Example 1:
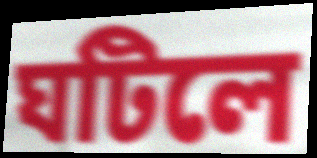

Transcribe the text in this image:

ঘটিলে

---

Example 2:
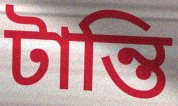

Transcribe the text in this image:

টান্তি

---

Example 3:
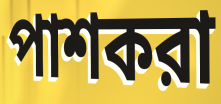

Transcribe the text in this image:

পাশকরা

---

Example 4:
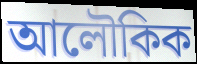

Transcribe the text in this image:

আলৌকিক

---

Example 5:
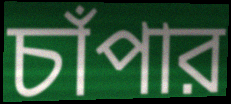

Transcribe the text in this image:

চাঁপার